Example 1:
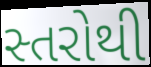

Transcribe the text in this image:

સ્તરોથી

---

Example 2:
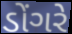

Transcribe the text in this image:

ડોંગરે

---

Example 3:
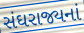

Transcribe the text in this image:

સંઘરાજ્યનાં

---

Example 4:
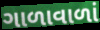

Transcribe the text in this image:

ગાળાવાળાં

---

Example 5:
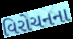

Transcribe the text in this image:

વિરોચનના